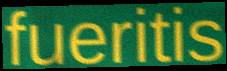
fueritis